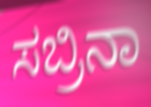
ಸಬ್ರಿನಾ